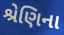
શ્રેણિના